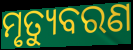
ମୃତ୍ୟୁବରଣ